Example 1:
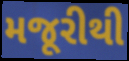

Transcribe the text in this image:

મજૂરીથી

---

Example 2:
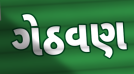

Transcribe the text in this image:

ગેઠવણ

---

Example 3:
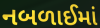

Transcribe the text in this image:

નબળાઈમાં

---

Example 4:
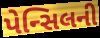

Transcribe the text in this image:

પેન્સિલની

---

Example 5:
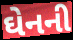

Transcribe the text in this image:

ઘેનની